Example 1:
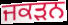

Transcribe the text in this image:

ਜਕੜਨ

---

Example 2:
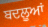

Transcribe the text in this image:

ਬਦਲੂਆਂ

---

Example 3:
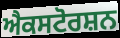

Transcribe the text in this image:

ਐਕਸਟੋਰਸ਼ਨ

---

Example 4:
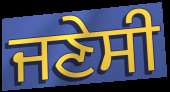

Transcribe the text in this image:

ਜਣੇਸੀ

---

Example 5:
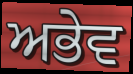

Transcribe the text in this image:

ਅਭੇਵ